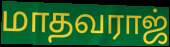
மாதவராஜ்